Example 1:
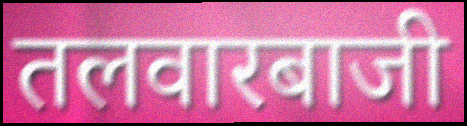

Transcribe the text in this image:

तलवारबाजी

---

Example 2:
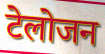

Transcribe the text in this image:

टेलोजन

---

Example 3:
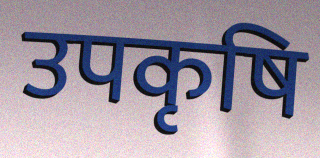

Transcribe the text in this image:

उपकृषि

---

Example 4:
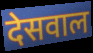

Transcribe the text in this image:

देसवाल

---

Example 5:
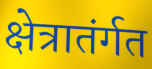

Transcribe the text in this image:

क्षेत्रातंर्गत